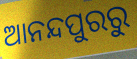
ଆନନ୍ଦପୁରରୁ